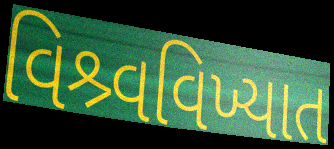
વિશ્ર્વવિખ્યાત